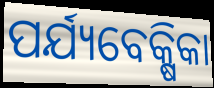
ପର୍ଯ୍ୟବେକ୍ଷିକା